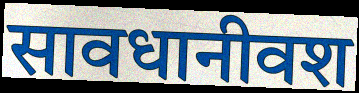
सावधानीवश